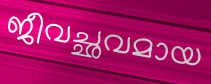
ജീവച്ഛവമായ